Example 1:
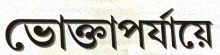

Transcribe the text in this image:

ভোক্তাপর্যায়ে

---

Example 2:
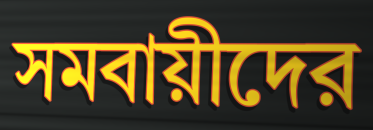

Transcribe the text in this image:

সমবায়ীদের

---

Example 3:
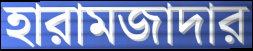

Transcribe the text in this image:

হারামজাদার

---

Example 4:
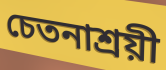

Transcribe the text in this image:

চেতনাশ্রয়ী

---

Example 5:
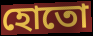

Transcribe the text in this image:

হোতো